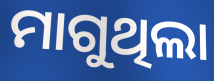
ମାଗୁଥିଲା